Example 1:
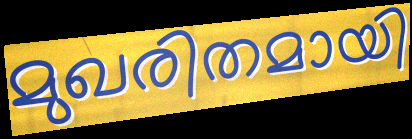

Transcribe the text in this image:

മുഖരിതമായി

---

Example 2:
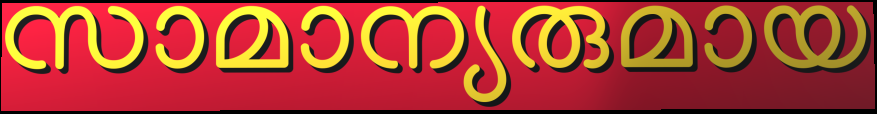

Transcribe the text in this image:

സാമാന്യരുമായ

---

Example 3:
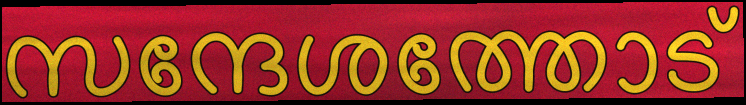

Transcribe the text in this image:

സന്ദേശത്തോട്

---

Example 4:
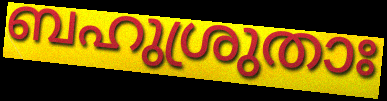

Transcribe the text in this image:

ബഹുശ്രുതാഃ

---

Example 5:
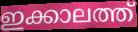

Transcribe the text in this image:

ഇക്കാലത്ത്